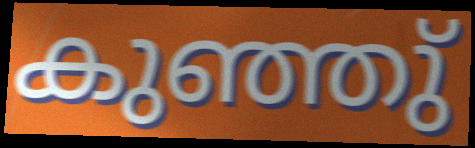
കുഞ്ഞു്